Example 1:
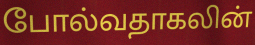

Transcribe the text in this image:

போல்வதாகலின்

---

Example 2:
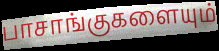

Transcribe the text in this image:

பாசாங்குகளையும்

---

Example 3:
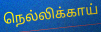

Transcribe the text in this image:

நெல்லிக்காய்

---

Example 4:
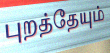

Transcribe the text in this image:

புறத்தேயும்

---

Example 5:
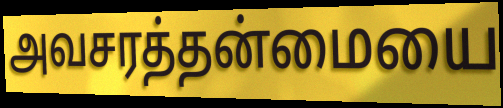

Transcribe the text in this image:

அவசரத்தன்மையை